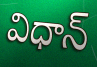
విధాన్